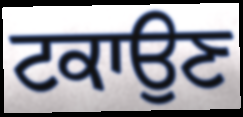
ਟਕਾਉਣ